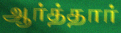
ஆர்த்தார்